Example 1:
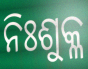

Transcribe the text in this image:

ନିଃଶୁକ୍ଳ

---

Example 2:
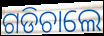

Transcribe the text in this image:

ଗଡିଚାଲେ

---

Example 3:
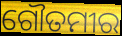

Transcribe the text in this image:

ଗୌତମୀର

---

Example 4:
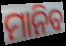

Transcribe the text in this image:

ମାନିବ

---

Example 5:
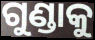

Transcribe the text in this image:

ଗୁଣ୍ଡାକୁ